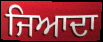
ਜਿਆਦਾ